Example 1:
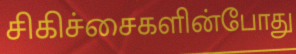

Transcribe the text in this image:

சிகிச்சைகளின்போது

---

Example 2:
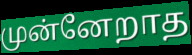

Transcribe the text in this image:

முன்னேறாத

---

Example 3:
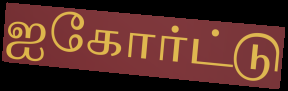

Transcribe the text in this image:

ஐகோர்ட்டு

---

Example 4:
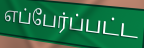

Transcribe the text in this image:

எப்பேர்ப்பட்ட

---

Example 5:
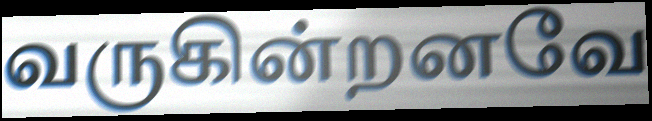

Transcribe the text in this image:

வருகின்றனவே